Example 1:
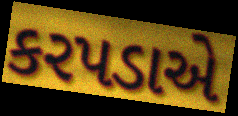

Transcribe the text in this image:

કરપડાએ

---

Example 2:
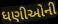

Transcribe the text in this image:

ધણીઓની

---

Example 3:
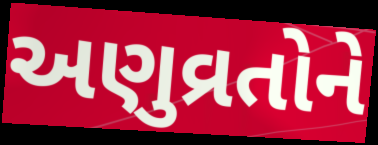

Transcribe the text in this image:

અણુવ્રતોને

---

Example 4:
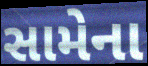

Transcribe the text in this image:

સામેના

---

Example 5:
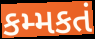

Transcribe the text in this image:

કમ્મકતં